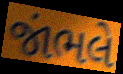
જાંભલે